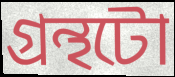
গ্ৰন্থটো